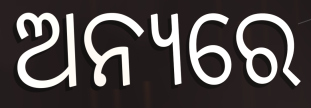
ଅନ୍ୟରେ